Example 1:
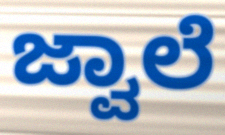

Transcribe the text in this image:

ಜ್ವಾಲೆ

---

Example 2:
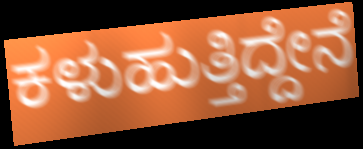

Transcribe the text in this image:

ಕಳುಹುತ್ತಿದ್ದೇನೆ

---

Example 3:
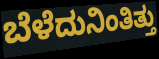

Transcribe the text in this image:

ಬೆಳೆದುನಿಂತಿತ್ತು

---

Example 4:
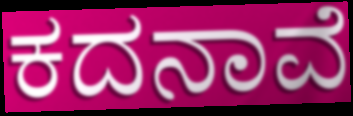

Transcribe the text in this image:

ಕದನಾವೆ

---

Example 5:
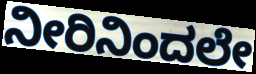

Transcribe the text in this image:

ನೀರಿನಿಂದಲೇ